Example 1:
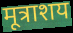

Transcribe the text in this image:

मूत्राशय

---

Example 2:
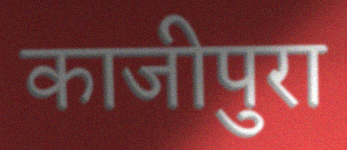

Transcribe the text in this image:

काजीपुरा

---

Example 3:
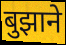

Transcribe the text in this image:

बुझाने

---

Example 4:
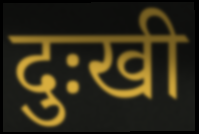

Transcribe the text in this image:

दुःखी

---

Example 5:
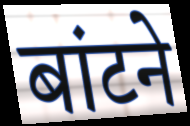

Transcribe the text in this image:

बांटने